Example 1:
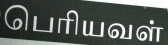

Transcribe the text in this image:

பெரியவள்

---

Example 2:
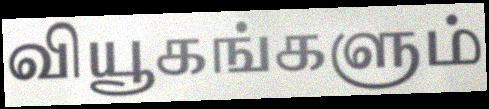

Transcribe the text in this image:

வியூகங்களும்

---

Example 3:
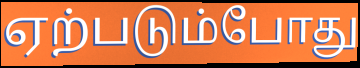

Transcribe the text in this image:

ஏற்படும்போது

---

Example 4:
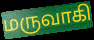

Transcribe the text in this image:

மருவாகி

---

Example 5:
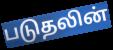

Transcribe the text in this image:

படுதலின்